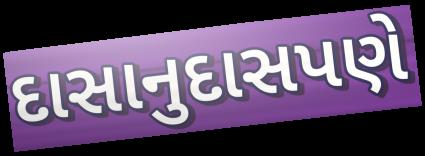
દાસાનુદાસપણે